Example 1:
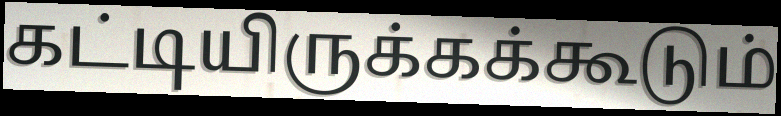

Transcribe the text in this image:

கட்டியிருக்கக்கூடும்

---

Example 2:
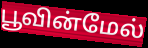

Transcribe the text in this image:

பூவின்மேல்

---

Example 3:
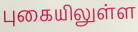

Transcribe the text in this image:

புகையிலுள்ள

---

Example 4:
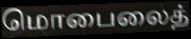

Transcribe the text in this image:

மொபைலைத்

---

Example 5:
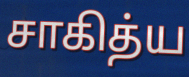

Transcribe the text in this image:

சாகித்ய